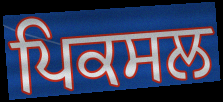
ਪਿਕਸਲ